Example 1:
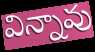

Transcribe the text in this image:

విన్నావు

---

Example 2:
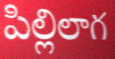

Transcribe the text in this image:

పిల్లిలాగ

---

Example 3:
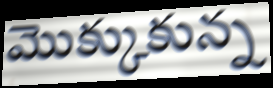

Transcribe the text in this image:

మొక్కుకున్న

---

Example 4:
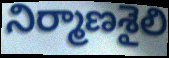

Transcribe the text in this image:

నిర్మాణశైలి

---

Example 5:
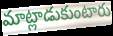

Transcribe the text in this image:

మాట్లాడుకుంటారు